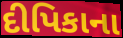
દીપિકાના